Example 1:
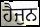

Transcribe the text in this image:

ਹੈਜੁਨ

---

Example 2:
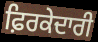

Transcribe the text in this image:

ਫ਼ਿਰਕੇਦਾਰੀ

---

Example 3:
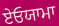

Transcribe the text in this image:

ਏਓਯਾਮਾ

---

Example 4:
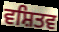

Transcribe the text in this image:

ਵਸ਼ਿਤਵ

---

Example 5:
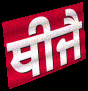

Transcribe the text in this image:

ਥੀਜੈ